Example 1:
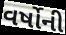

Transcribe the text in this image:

વર્ષોની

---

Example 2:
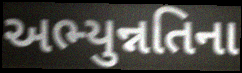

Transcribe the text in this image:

અભ્યુન્નતિના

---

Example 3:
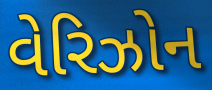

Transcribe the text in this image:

વેરિઝોન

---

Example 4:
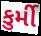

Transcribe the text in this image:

કુર્મી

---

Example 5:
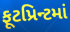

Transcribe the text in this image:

ફૂટપ્રિન્ટમાં